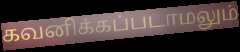
கவனிக்கப்படாமலும்